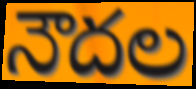
నౌదల